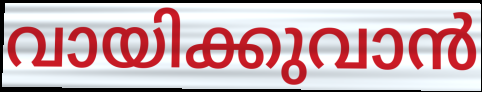
വായിക്കുവാൻ